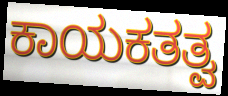
ಕಾಯಕತತ್ವ